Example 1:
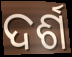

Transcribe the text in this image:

ଦର୍ଶ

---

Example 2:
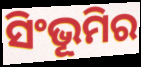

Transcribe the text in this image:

ସିଂଭୂମିର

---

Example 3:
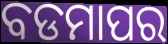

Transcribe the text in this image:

ବଡମାପର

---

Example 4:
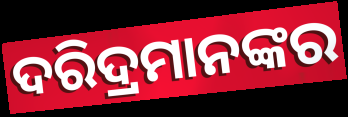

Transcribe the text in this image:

ଦରିଦ୍ରମାନଙ୍କର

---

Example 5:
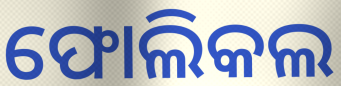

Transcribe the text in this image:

ଫୋଲିକଲ